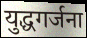
युद्धगर्जना